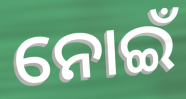
ନୋଇଁ